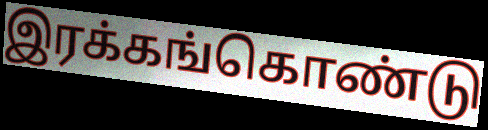
இரக்கங்கொண்டு